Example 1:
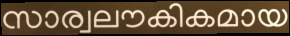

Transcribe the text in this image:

സാര്വലൗകികമായ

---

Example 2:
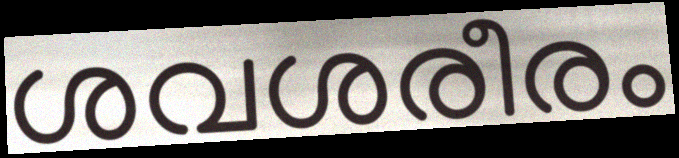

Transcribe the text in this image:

ശവശരീരം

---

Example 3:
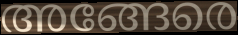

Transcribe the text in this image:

അങ്ങേരെ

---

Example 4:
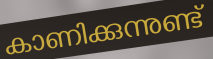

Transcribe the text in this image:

കാണിക്കുന്നുണ്ട്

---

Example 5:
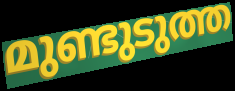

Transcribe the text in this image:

മുണ്ടുടുത്ത